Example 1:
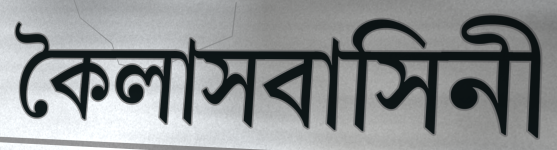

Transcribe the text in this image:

কৈলাসবাসিনী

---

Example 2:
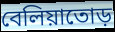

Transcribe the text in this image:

বেলিয়াতোড়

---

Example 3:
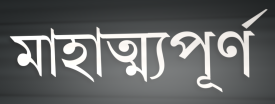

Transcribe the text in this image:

মাহাত্ম্যপূর্ণ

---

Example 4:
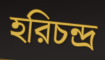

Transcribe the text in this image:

হরিচন্দ্র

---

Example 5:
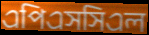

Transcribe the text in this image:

এপিএসসিএল